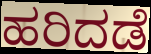
ಹರಿದಡೆ